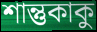
শান্তুকাকু